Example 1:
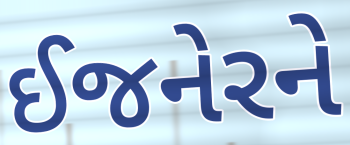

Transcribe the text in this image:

ઈજનેરને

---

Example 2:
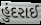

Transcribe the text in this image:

હુંદરાઈ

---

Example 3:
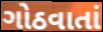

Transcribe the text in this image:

ગોઠવાતાં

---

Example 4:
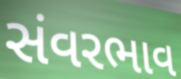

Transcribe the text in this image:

સંવરભાવ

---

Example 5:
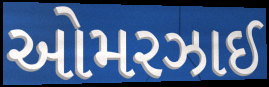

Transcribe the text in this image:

ઓમરઝાઈ